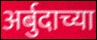
अर्बुदाच्या